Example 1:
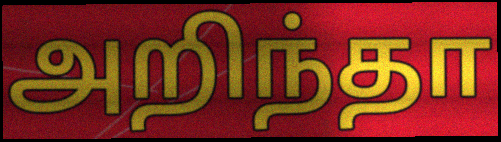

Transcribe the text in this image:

அறிந்தா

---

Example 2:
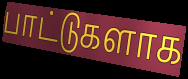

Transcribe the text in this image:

பாட்டுகளாக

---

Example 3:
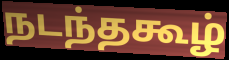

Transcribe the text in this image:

நடந்தகூழ்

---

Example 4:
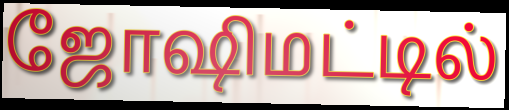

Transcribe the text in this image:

ஜோஷிமட்டில்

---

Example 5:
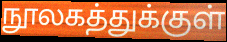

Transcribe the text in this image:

நூலகத்துக்குள்